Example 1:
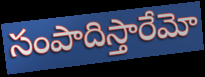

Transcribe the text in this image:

సంపాదిస్తారేమో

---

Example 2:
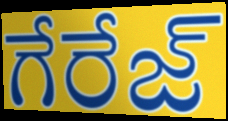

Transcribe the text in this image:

గేరేజ్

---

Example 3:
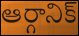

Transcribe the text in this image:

ఆర్గానిక్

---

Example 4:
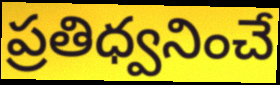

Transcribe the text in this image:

ప్రతిధ్వనించే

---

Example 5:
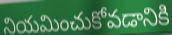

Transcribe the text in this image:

నియమించుకోవడానికి